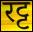
रट्ट